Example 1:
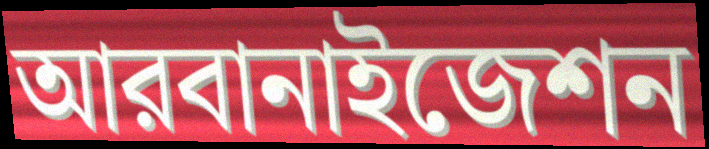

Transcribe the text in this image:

আরবানাইজেশন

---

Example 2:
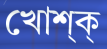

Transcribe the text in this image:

খোশ্ক্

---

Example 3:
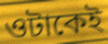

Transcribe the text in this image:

ওটাকেই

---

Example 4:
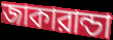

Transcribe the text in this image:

জাকারান্ডা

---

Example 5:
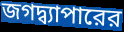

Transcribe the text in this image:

জগদ্ব্যাপারের